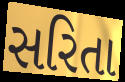
સરિતા